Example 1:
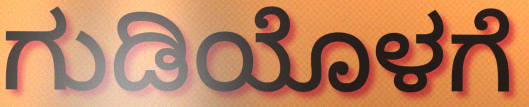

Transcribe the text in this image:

ಗುಡಿಯೊಳಗೆ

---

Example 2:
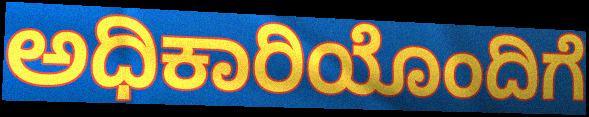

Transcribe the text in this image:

ಅಧಿಕಾರಿಯೊಂದಿಗೆ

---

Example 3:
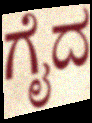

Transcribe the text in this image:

ಗೈದ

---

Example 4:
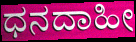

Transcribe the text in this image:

ಧನದಾಹೀ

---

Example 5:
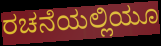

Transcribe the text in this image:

ರಚನೆಯಲ್ಲಿಯೂ